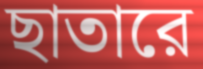
ছাতারে